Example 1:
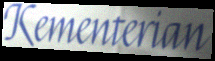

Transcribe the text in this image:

Kementerian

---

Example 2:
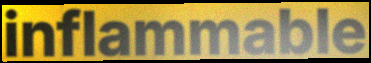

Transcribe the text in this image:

inflammable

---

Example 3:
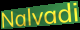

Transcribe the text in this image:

Nalvadi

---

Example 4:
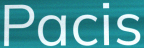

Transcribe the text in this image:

Pacis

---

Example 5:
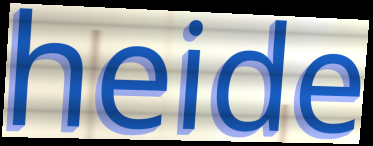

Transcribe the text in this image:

heide